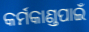
କର୍ମକାଣ୍ଡପାଇଁ